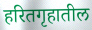
हरितगृहातील